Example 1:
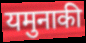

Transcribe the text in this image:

यमुनाकी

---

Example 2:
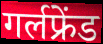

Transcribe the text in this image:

गर्लफ्रेंड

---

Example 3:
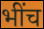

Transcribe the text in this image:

भींच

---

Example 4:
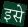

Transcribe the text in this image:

इसे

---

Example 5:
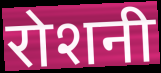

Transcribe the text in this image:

रोशनी